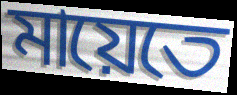
মায়েতে